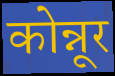
कोन्नूर